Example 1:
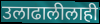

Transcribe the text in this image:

उलाढालीलाही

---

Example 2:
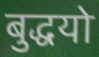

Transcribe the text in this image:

बुद्धयो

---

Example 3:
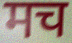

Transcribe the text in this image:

मच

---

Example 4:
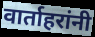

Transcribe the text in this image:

वार्ताहरांनी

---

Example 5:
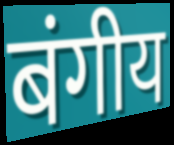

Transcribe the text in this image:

बंगीय